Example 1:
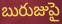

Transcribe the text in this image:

బురుజుపై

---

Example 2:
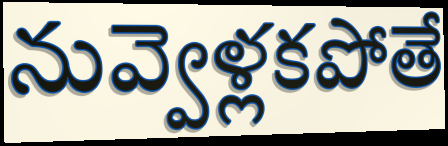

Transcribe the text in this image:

నువ్వెళ్లకపోతే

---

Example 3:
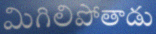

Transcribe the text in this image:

మిగిలిపోతాడు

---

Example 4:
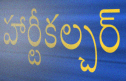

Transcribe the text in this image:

హార్టీకల్చర్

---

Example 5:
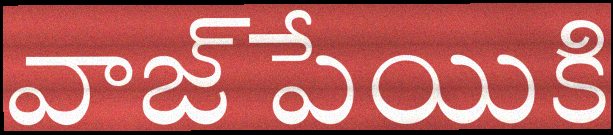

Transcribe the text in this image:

వాజ్‌పేయికి